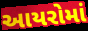
આયરોમાં